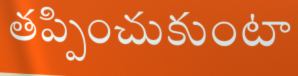
తప్పించుకుంటా